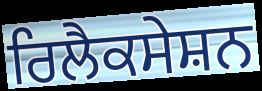
ਰਿਲੈਕਸੇਸ਼ਨ